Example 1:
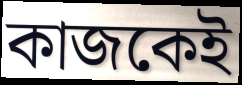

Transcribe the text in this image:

কাজকেই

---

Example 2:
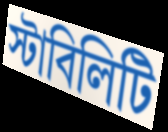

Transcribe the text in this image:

স্টাবিলিটি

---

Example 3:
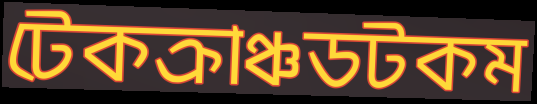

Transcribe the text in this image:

টেকক্রাঞ্চডটকম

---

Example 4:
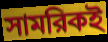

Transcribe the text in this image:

সামরিকই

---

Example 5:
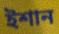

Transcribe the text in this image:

ইশান